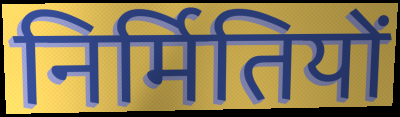
निर्मितियों